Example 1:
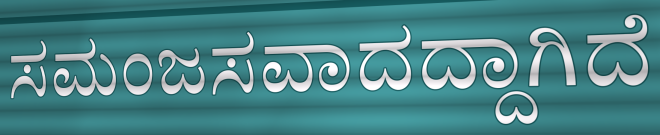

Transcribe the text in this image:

ಸಮಂಜಸವಾದದ್ದಾಗಿದೆ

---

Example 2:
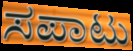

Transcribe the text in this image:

ಸಪಾಟು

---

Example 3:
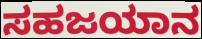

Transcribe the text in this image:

ಸಹಜಯಾನ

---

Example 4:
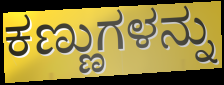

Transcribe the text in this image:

ಕಣ್ಣುಗಳನ್ನು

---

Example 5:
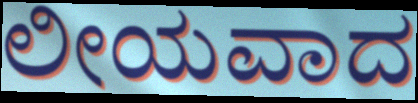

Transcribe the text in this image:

ಲೀಯವಾದ